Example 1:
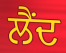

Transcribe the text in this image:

ਲੈਂਦ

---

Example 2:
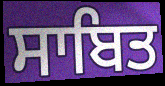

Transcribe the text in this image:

ਸਾਬਿਤ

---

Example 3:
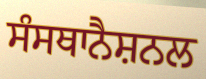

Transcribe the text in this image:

ਸੰਸਥਾਨੈਸ਼ਨਲ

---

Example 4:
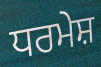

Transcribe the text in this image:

ਧਰਮੇਸ਼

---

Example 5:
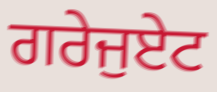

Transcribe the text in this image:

ਗਰੇਜੁਏਟ